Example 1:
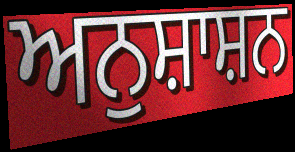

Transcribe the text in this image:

ਅਨੁਸ਼ਾਸ਼ਨ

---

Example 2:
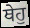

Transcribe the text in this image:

ਥੇਹੁ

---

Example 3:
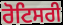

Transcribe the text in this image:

ਰੋਟਿਸਰੀ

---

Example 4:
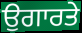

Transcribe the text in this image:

ਉਗਾਰਤੇ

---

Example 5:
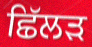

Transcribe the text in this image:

ਛਿੱਲੜ